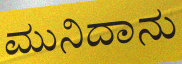
ಮುನಿದಾನು